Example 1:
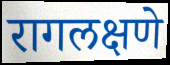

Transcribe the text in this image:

रागलक्षणे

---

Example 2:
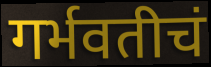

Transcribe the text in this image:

गर्भवतीचं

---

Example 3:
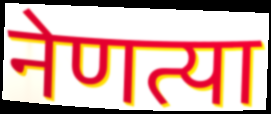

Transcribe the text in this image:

नेणत्या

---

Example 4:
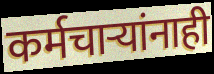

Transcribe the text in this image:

कर्मचाऱ्यांनाही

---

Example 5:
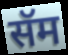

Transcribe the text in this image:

सॅम